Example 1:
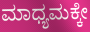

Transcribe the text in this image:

ಮಾಧ್ಯಮಕ್ಕೇ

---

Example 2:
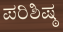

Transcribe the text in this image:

ಪರಿಶಿಷ್ಠ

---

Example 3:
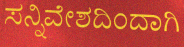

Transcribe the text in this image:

ಸನ್ನಿವೇಶದಿಂದಾಗಿ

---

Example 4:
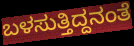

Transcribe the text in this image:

ಬಳಸುತ್ತಿದ್ದನಂತೆ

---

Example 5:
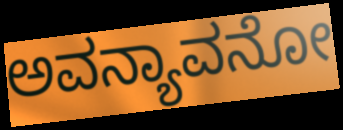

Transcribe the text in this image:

ಅವನ್ಯಾವನೋ